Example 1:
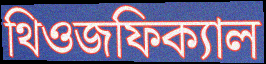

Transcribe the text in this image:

থিওজফিক্যাল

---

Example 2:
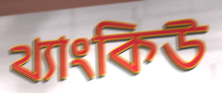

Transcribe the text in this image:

থ্যাংকিউ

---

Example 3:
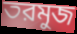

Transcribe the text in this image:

তরমুজ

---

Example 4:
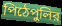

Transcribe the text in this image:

পিঠেপুলির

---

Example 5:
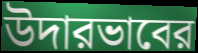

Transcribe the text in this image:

উদারভাবের